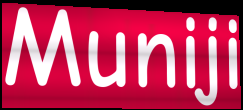
Muniji